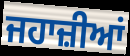
ਜਹਾਜ਼ੀਆਂ